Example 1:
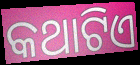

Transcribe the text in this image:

କଥାଟିଏ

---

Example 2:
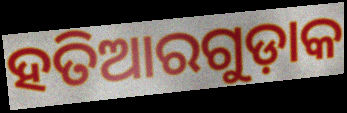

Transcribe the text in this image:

ହତିଆରଗୁଡ଼ାକ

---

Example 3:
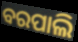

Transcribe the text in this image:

ବରପାଲି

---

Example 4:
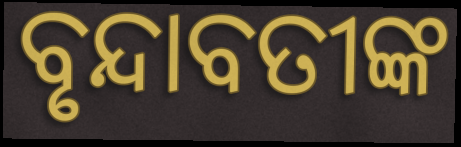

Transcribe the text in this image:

ବୃନ୍ଦାବତୀଙ୍କ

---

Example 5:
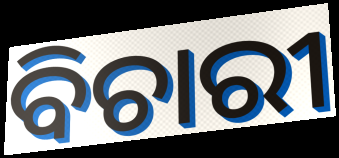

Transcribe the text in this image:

ବିଚାରୀ